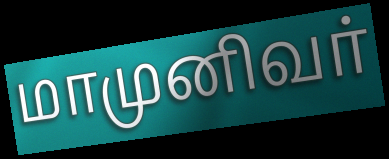
மாமுனிவர்